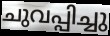
ചുവപ്പിച്ചു